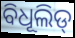
ବିଧୂଲିଡ୍